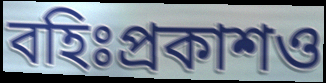
বহিঃপ্রকাশও